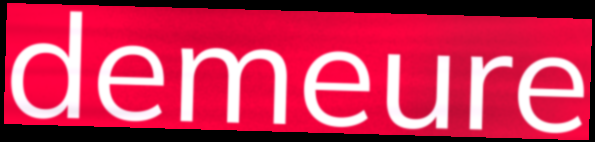
demeure